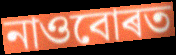
নাওবোৰত